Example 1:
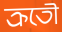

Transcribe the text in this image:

ক্রতৌ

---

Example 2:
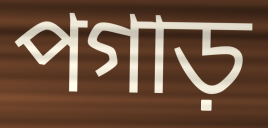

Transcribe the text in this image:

পগাড়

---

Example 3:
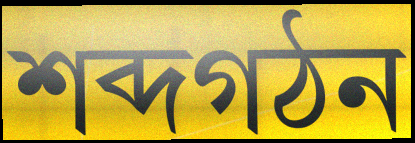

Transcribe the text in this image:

শব্দগঠন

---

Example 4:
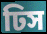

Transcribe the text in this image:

ঢিস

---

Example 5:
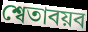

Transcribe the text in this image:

শ্বেতাবয়ব